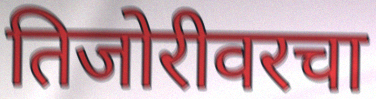
तिजोरीवरचा